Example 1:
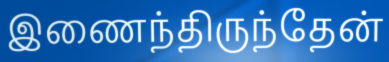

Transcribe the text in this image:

இணைந்திருந்தேன்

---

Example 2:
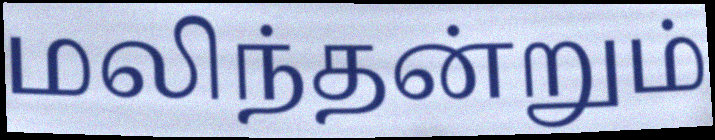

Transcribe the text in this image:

மலிந்தன்றும்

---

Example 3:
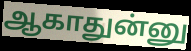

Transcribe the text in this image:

ஆகாதுன்னு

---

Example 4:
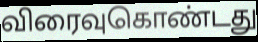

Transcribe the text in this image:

விரைவுகொண்டது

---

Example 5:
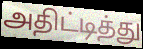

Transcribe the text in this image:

அதிட்டித்து